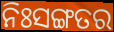
ନିଃସଙ୍ଗତର